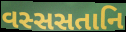
વસ્સસતાનિ